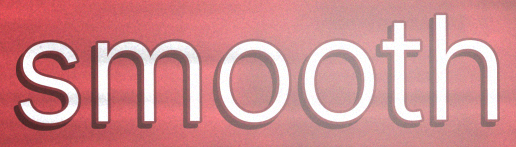
smooth